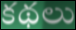
కథలు